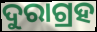
ଦୁରାଗ୍ରହ